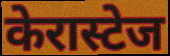
केरास्टेज